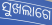
ସୁଖଲାଗେ